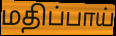
மதிப்பாய்